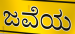
ಜವೆಯ